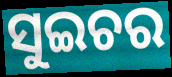
ସୁଇଚର